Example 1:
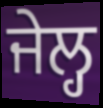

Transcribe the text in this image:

ਜੇਲ੍ਹ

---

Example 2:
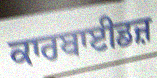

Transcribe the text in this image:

ਕਾਰਬਾਈਡਜ਼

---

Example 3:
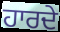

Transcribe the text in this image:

ਹਾਰਦੇ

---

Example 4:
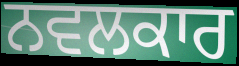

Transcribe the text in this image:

ਨਵਲਕਾਰ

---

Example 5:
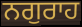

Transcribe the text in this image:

ਨਗੁਰਾਹ